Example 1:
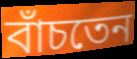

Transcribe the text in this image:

বাঁচতেন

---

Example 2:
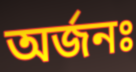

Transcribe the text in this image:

অর্জনঃ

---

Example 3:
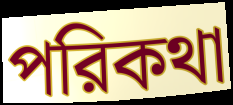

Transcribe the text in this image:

পরিকথা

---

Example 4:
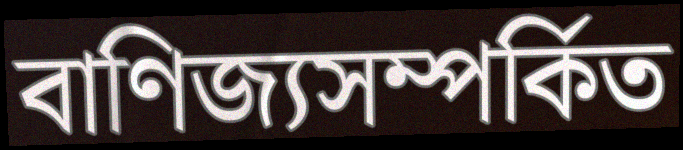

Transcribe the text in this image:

বাণিজ্যসম্পর্কিত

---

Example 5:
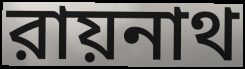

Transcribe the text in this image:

রায়নাথ